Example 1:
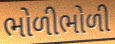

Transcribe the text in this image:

ભોળીભોળી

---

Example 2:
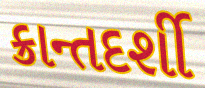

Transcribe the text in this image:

ક્રાન્તદર્શી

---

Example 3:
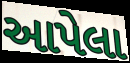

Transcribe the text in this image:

આપેલા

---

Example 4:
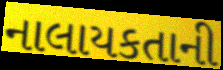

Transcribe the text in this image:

નાલાયકતાની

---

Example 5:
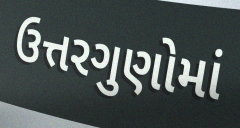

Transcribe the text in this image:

ઉત્તરગુણોમાં